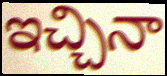
ఇచ్చినా